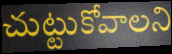
చుట్టుకోవాలని